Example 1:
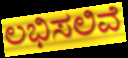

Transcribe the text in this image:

ಲಭಿಸಲಿವೆ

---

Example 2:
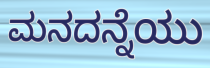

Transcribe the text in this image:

ಮನದನ್ನೆಯು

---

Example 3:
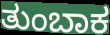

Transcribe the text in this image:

ತುಂಬಾಕ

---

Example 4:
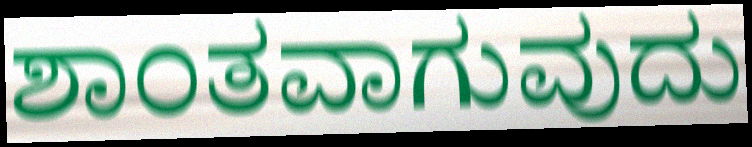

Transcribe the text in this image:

ಶಾಂತವಾಗುವುದು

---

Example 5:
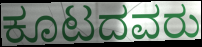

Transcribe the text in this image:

ಕೂಟದವರು